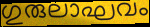
ഗുരുലാഘവം